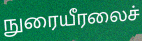
நுரையீரலைச்